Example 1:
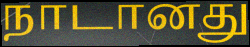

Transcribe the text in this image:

நாடானது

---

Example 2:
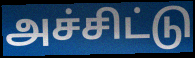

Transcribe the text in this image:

அச்சிட்டு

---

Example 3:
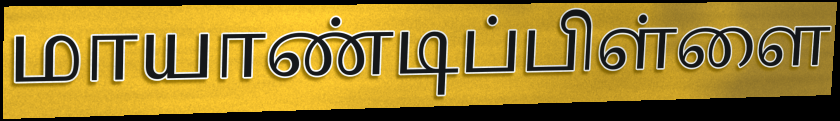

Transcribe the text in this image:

மாயாண்டிப்பிள்ளை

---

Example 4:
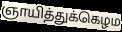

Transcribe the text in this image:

ஞாயித்துக்கெழம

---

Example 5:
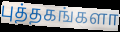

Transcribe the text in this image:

புத்தகங்களா